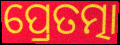
ପ୍ରେତତ୍ମା